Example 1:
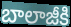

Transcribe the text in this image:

బాలాజీకి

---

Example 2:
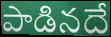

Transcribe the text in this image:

పాడినదే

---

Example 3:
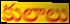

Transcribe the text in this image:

కులాలు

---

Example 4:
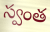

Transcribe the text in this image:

స్వంత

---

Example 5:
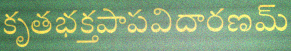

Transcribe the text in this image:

కృతభక్తపాపవిదారణమ్